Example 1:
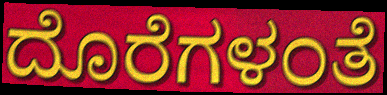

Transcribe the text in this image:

ದೊರೆಗಳಂತೆ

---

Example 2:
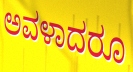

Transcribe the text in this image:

ಅವಳಾದರೂ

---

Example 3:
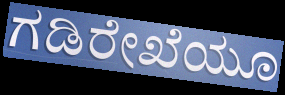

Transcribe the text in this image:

ಗಡಿರೇಖೆಯೂ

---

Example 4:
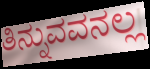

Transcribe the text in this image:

ತಿನ್ನುವವನಲ್ಲ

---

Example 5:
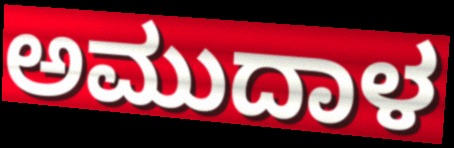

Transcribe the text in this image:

ಅಮುದಾಳ